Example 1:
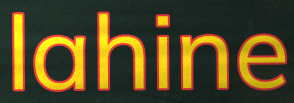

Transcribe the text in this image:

lahine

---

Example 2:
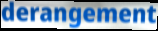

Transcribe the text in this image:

derangement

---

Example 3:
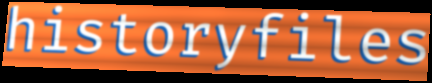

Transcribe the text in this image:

historyfiles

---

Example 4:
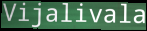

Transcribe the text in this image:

Vijalivala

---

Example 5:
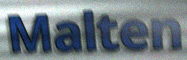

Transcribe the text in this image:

Malten